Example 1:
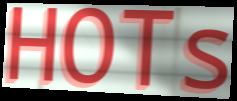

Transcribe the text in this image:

HOTs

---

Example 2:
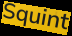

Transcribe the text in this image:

Squint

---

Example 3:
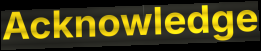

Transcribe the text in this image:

Acknowledge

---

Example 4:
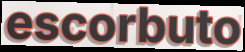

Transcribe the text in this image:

escorbuto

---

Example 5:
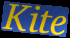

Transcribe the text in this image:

Kite